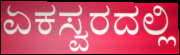
ಏಕಸ್ವರದಲ್ಲಿ